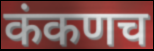
कंकणच